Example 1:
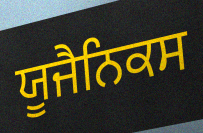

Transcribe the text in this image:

ਯੂਜੈਨਿਕਸ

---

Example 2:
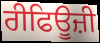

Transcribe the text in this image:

ਰੀਫਿਊਜ਼ੀ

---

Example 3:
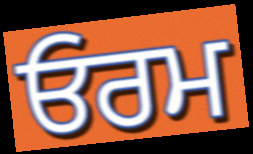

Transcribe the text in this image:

ਓਰਮ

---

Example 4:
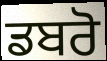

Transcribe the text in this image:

ਡਬਰੋ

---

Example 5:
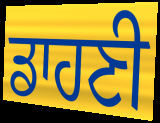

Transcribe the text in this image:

ਡਾਹਣੀ